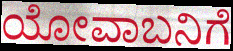
ಯೋವಾಬನಿಗೆ